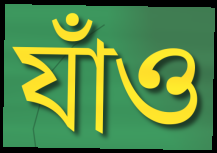
যাঁও